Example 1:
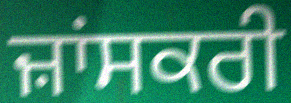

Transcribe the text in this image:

ਜ਼ਾਂਸਕਰੀ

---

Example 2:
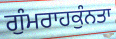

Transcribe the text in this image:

ਗੁੰਮਰਾਹਕੁੰਨਤਾ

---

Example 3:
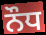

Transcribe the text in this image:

ਨੌਧ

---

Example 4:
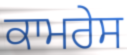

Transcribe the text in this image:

ਕਾਮਰੇਸ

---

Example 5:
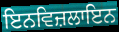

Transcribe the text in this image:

ਇਨਵਿਜ਼ਲਾਇਨ